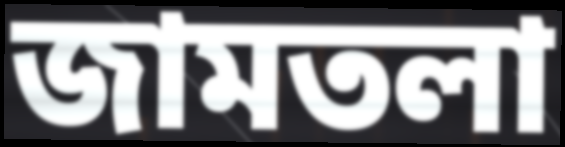
জামতলা